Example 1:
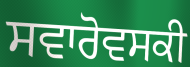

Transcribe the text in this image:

ਸਵਾਰੋਵਸਕੀ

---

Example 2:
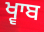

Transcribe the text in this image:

ਖ੍ਵਾਬ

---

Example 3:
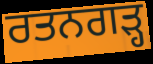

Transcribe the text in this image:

ਰਤਨਗੜ੍ਹ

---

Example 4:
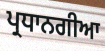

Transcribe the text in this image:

ਪ੍ਰਧਾਨਗੀਆ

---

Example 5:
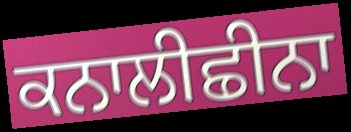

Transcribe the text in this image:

ਕਨਾਲੀਛੀਨਾ